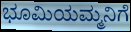
ಭೂಮಿಯಮ್ಮನಿಗೆ